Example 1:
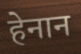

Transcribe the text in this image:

हेनान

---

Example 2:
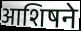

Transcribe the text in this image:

आशिषने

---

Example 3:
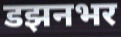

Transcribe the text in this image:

डझनभर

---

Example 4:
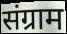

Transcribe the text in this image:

संग्राम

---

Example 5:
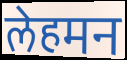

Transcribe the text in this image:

लेहमन